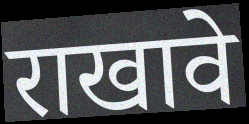
राखावे